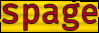
spage